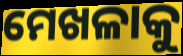
ମେଖଳାକୁ